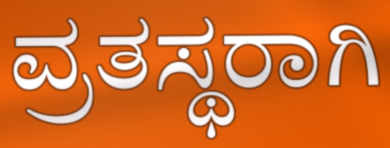
ವ್ರತಸ್ಥರಾಗಿ